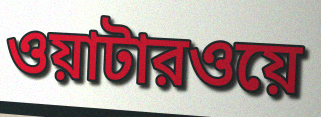
ওয়াটারওয়ে